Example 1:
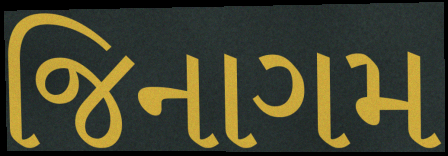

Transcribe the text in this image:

જિનાગમ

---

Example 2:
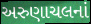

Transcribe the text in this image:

અરુણાચલનાં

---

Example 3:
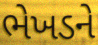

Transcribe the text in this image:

ભેખડને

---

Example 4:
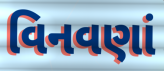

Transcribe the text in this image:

વિનવણાં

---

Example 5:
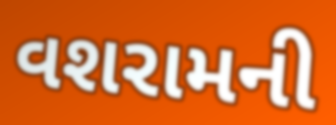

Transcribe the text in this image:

વશરામની